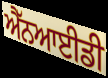
ਐੱਨਆਈਡੀ